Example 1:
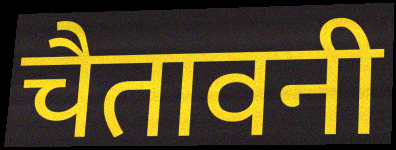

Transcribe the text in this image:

चैतावनी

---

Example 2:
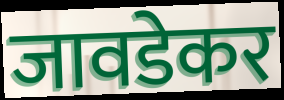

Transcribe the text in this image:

जावडेकर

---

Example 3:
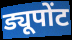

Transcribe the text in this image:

ड्यूपोंट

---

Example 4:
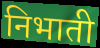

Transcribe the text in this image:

निभाती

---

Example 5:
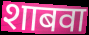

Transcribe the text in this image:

शाबवा